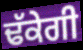
ਢੱਕੇਗੀ